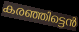
കരഞ്ഞിട്ടെൻ